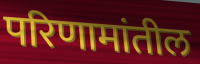
परिणामांतील